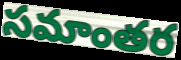
సమాంతర